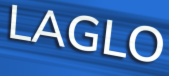
LAGLO